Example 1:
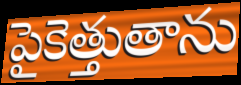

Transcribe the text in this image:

పైకెత్తుతాను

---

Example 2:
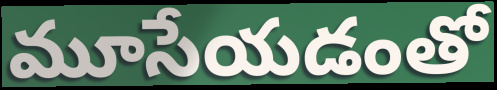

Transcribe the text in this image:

మూసేయడంతో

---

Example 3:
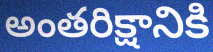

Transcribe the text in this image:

అంతరిక్షానికి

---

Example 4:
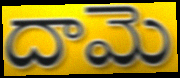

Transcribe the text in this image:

దామె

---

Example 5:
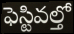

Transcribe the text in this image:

ఫెస్టివల్తో